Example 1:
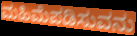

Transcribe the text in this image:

ಮಹಿಮೆಪಡಿಸುವನು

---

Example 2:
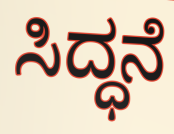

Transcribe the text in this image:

ಸಿದ್ಧನೆ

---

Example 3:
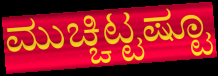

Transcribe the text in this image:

ಮುಚ್ಚಿಟ್ಟಷ್ಟೂ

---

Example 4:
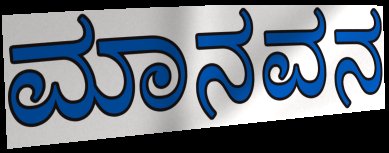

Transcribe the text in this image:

ಮಾನವನ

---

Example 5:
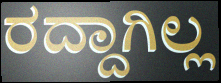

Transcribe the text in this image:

ರದ್ದಾಗಿಲ್ಲ